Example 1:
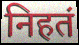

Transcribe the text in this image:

निहतं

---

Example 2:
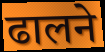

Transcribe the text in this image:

ढालने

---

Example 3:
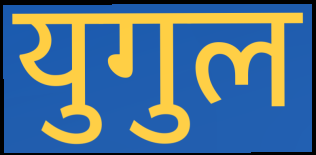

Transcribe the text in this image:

युगुल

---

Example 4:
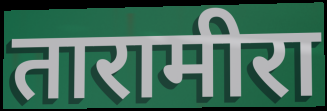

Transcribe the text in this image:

तारामीरा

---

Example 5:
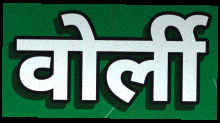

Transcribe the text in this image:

वोर्ली